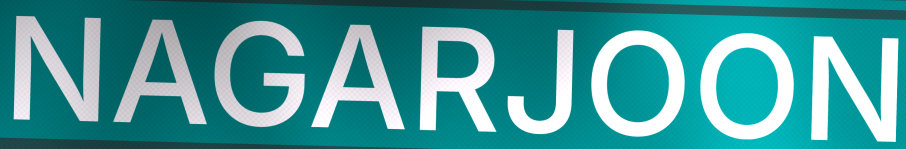
NAGARJOON